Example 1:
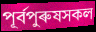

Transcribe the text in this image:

পূৰ্বপুৰুষসকল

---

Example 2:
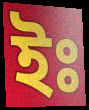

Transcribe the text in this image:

ইঃ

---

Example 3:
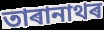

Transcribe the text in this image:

তাৰানাথৰ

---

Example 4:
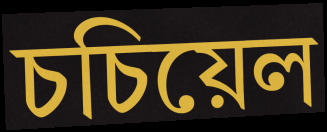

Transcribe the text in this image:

চচিয়েল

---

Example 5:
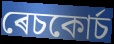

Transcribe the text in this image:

ৰেচকোৰ্চ